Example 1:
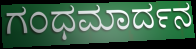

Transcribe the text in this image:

ಗಂಧಮಾರ್ದನ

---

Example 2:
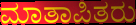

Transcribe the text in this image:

ಮಾತಾಪಿತರು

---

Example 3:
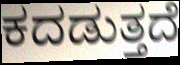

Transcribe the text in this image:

ಕದಡುತ್ತದೆ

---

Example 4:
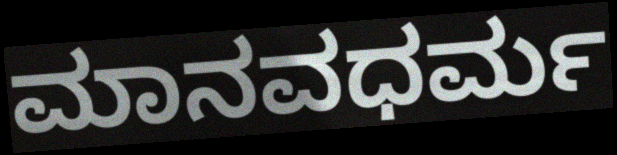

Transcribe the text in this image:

ಮಾನವಧರ್ಮ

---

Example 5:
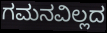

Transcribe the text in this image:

ಗಮನವಿಲ್ಲದ